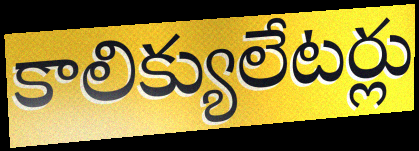
కాలిక్యులేటర్లు